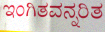
ಇಂಗಿತವನ್ನರಿತ